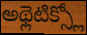
అథ్లెటిక్స్లో